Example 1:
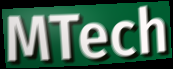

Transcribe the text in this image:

MTech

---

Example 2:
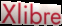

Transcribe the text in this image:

Xlibre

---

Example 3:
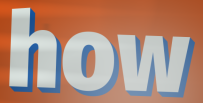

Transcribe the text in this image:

how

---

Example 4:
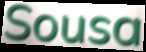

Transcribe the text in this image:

Sousa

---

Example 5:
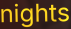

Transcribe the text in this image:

nights